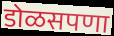
डोळसपणा